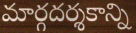
మార్గదర్శకాన్ని